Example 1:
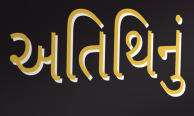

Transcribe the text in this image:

અતિથિનું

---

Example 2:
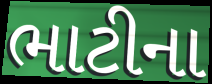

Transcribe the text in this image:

ભાટીના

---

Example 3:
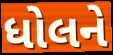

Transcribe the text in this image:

ધોલને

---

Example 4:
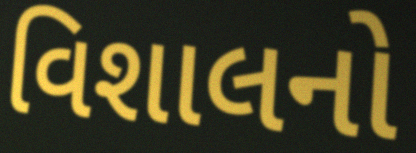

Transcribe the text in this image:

વિશાલનો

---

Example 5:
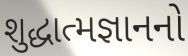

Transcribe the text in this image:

શુદ્ધાત્મજ્ઞાનનો